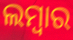
ଲମ୍ୱାର